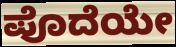
ಪೊದೆಯೇ